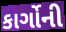
કાર્ગોની